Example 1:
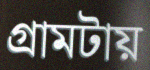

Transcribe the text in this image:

গ্রামটায়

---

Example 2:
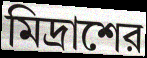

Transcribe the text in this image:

মিদ্রাশের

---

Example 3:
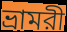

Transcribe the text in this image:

ভ্রামরী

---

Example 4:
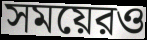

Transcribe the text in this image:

সময়েরও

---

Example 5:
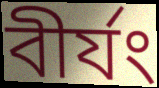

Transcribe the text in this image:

বীর্যং